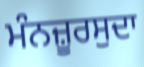
ਮੰਨਜ਼ੂਰਸੁਦਾ